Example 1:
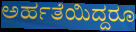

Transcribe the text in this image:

ಅರ್ಹತೆಯಿದ್ದರೂ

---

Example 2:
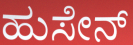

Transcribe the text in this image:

ಹುಸೇನ್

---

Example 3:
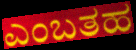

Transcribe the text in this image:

ಎಂಬತಹ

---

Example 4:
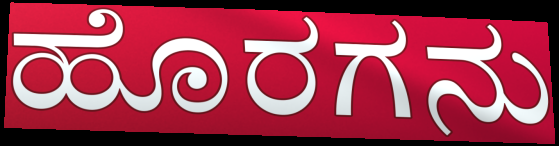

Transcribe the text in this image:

ಹೊರಗನು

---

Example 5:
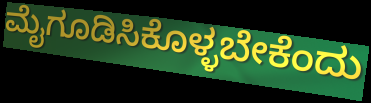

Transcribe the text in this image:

ಮೈಗೂಡಿಸಿಕೊಳ್ಳಬೇಕೆಂದು